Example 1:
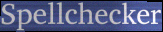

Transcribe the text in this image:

Spellchecker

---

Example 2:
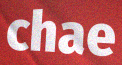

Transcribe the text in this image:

chae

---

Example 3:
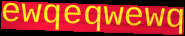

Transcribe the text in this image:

ewqeqwewq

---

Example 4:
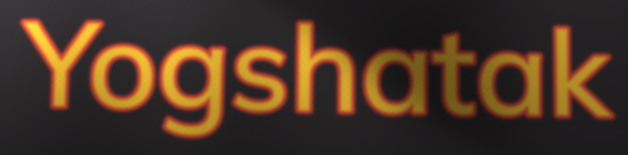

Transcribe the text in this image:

Yogshatak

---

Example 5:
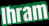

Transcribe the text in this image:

lhram